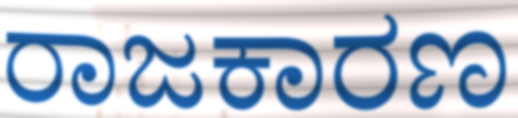
ರಾಜಕಾರಣ